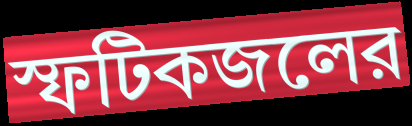
স্ফটিকজলের